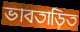
ভাবতাড়িত